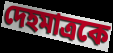
দেহমাত্রকে